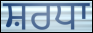
ਸ਼ਰਧਾ